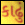
કાઢું